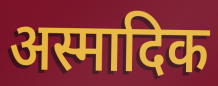
अस्मादिक